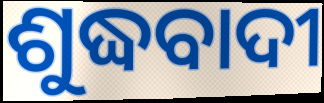
ଶୁଦ୍ଧବାଦୀ